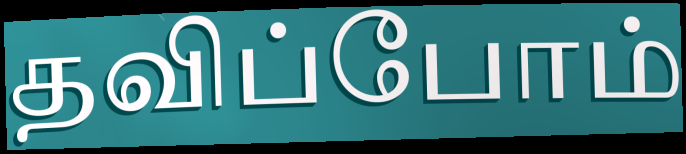
தவிப்போம்